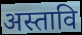
अस्तावि